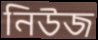
নিউজ